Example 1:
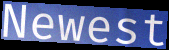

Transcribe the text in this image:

Newest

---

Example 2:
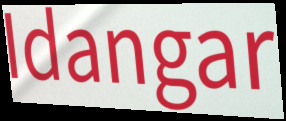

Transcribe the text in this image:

Idangar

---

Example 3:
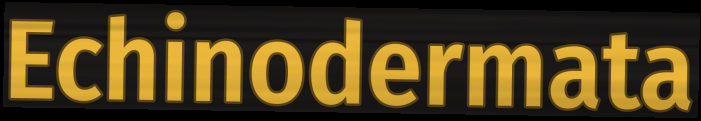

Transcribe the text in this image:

Echinodermata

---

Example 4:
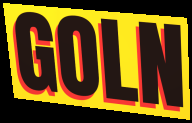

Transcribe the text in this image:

GOLN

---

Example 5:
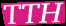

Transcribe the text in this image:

TTH